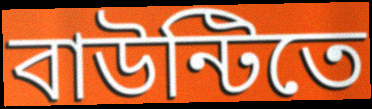
বাউন্টিতে